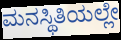
ಮನಸ್ಥಿತಿಯಲ್ಲೇ